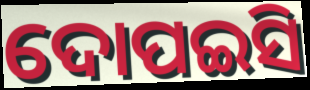
ଦୋପଇସି